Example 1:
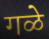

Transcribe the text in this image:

गळे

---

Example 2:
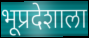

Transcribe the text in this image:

भूप्रदेशाला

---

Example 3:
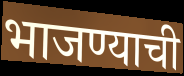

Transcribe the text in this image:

भाजण्याची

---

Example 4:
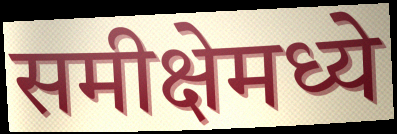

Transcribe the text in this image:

समीक्षेमध्ये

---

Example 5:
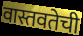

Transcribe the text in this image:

वास्तवतेची